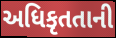
અધિકૃતતાની